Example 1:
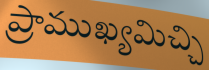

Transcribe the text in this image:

ప్రాముఖ్యమిచ్చి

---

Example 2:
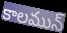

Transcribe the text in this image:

కాలమున్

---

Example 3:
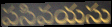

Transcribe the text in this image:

పసివయసు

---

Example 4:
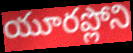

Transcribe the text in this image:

యూరప్లోని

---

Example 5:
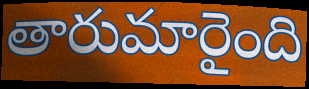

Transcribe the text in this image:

తారుమారైంది